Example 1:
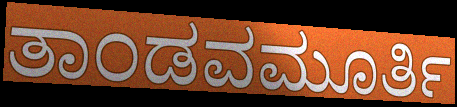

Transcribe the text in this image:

ತಾಂಡವಮೂರ್ತಿ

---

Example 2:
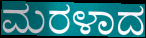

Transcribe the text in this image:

ಮರಳಾದ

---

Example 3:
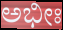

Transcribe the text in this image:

ಅಭೀಃ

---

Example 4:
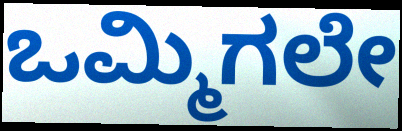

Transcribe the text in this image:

ಒಮ್ಮಿಗಲೇ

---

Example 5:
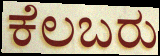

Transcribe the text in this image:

ಕೆಲಬರು